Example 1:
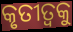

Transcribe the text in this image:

କୃତୀତ୍ଵକୁ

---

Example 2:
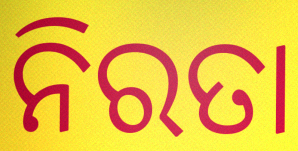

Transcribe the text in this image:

ନିରତା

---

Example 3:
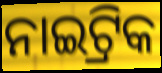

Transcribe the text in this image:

ନାଇଟ୍ରିକ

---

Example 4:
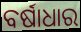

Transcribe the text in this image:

ବର୍ଷାଧାର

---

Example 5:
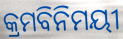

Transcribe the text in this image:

କ୍ରମବିନିମୟୀ